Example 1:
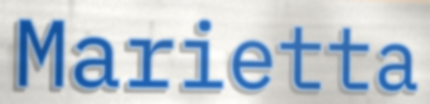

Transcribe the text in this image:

Marietta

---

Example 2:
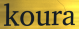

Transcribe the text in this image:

koura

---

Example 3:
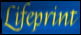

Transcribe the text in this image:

Lifeprint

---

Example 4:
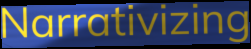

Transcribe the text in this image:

Narrativizing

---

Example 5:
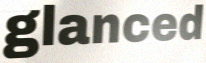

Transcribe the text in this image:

glanced